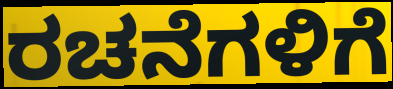
ರಚನೆಗಳಿಗೆ